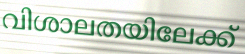
വിശാലതയിലേക്ക്